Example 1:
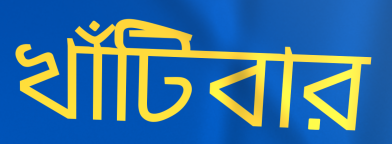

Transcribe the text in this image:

খাঁটিবার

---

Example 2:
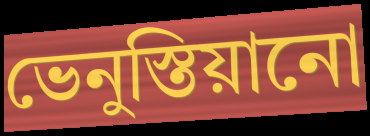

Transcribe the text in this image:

ভেনুস্তিয়ানো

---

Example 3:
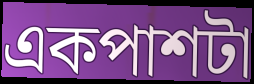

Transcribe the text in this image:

একপাশটা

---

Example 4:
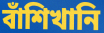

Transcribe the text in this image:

বাঁশিখানি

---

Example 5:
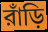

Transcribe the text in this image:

রাঁড়ি